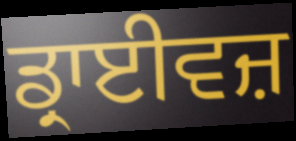
ਡ੍ਰਾਈਵਜ਼